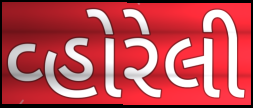
વ્હોરેલી